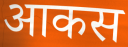
आकस